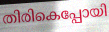
തിരികെപ്പോയി